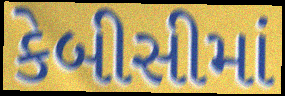
કેબીસીમાં